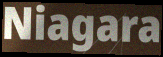
Niagara